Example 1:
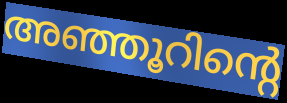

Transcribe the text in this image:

അഞ്ഞൂറിന്റെ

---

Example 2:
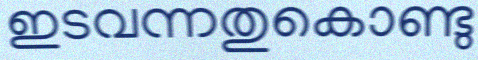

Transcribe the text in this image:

ഇടവന്നതുകൊണ്ടു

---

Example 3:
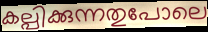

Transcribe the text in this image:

കല്പിക്കുന്നതുപോലെ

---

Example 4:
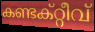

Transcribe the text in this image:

കണ്ടക്റ്റീവ്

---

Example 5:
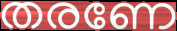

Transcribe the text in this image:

തരണേ